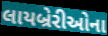
લાયબ્રેરીઓના